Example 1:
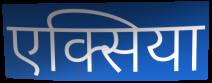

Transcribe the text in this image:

एक्सिया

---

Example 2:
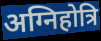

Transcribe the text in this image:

अग्निहोत्रि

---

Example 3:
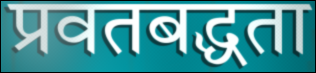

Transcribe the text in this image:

प्रवतबद्धता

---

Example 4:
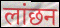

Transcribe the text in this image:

लांछन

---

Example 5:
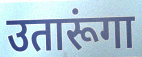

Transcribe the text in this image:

उतारूंगा